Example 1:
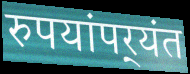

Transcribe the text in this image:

रुपयांपर्यंत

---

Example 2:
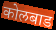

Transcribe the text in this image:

कोलबाड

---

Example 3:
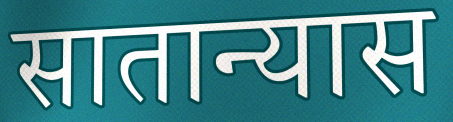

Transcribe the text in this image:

सातान्यास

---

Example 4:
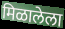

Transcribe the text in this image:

मिळालेला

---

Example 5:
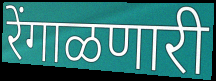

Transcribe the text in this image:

रेंगाळणारी